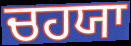
ਚਹਯਾ